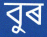
বুৰ